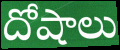
దోషాలు